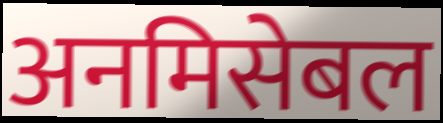
अनमिसेबल